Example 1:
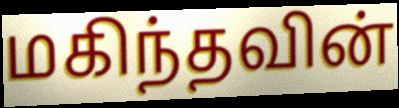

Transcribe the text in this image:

மகிந்தவின்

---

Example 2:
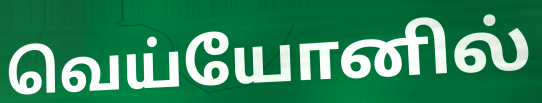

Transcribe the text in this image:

வெய்யோனில்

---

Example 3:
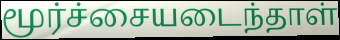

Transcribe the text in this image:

மூர்ச்சையடைந்தாள்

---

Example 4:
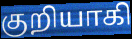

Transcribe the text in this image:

குறியாகி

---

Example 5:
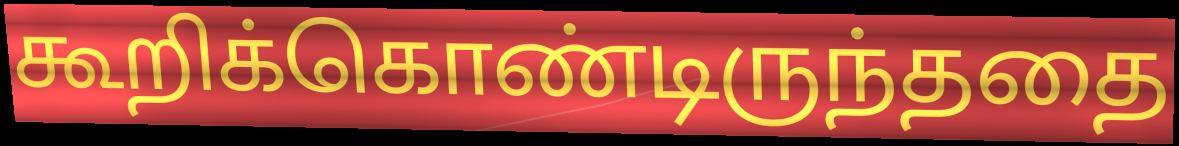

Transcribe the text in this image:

கூறிக்கொண்டிருந்ததை